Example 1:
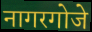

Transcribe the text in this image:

नागरगोजे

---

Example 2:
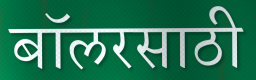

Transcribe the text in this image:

बॉलरसाठी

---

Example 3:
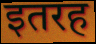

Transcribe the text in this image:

इतरह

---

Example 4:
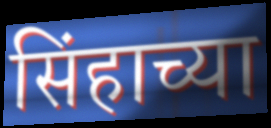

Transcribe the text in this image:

सिंहाच्या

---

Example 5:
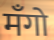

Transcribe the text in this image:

मँगो